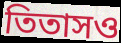
তিতাসও